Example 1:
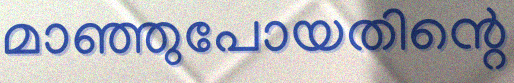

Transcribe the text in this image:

മാഞ്ഞുപോയതിന്റെ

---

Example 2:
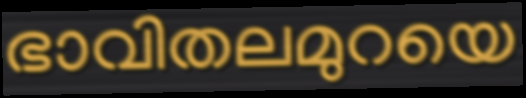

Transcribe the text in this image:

ഭാവിതലമുറയെ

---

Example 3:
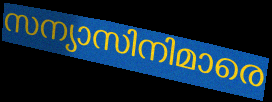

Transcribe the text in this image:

സന്യാസിനിമാരെ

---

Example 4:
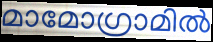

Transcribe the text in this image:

മാമോഗ്രാമിൽ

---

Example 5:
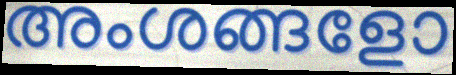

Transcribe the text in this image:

അംശങ്ങളോ